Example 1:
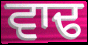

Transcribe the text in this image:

ਵਾਢ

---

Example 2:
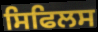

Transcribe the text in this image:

ਸਿਫਿਲਸ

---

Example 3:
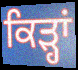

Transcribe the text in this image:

ਕਿੜ੍ਹਾਂ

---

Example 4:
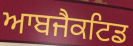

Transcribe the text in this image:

ਆਬਜੈਕਟਿਡ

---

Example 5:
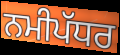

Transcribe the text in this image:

ਨਮੀਪੱਧਰ